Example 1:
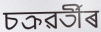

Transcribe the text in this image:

চক্ৰৱৰ্তীৰ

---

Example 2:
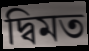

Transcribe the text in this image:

দ্বিমত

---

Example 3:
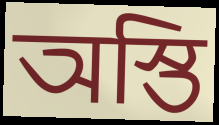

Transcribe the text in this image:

অস্তি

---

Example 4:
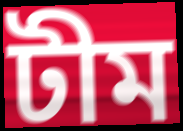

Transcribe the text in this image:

টীম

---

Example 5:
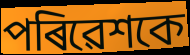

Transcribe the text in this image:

পৰিৱেশকে